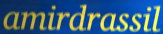
amirdrassil